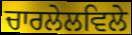
ਚਾਰਲੇਲਵਿਲੇ